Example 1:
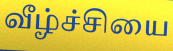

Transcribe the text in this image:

வீழ்ச்சியை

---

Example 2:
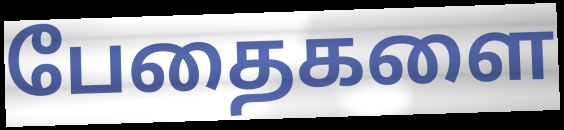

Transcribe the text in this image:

பேதைகளை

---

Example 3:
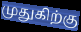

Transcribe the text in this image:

முதுகிற்கு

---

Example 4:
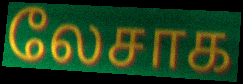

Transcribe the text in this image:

லேசாக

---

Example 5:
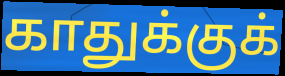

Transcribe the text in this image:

காதுக்குக்